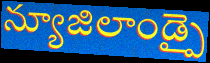
న్యూజిలాండ్పై